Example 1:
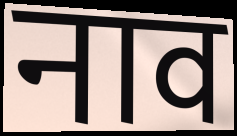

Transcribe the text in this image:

नाव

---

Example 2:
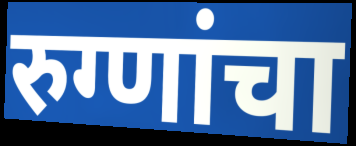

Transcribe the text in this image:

रुग्णांचा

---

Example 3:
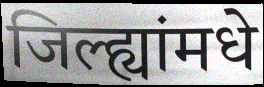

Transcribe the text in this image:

जिल्ह्यांमधे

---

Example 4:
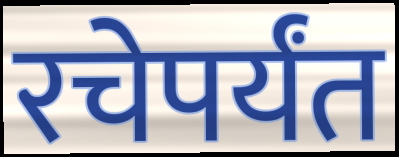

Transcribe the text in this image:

रचेपर्यंत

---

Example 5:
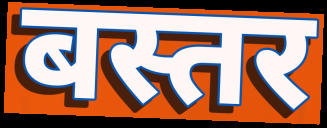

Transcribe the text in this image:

बस्तर